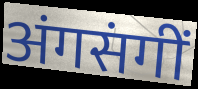
अंगसंगीं